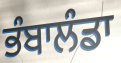
ਭੰਬਾਲੰਡਾ